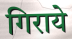
गिराये